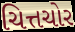
ચિત્તચોર